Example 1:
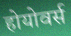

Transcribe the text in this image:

होयोवर्स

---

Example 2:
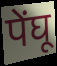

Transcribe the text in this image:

पेंघू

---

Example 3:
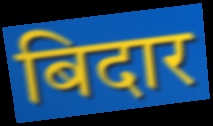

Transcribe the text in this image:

बिदार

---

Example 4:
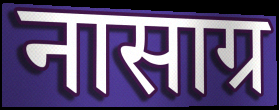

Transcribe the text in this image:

नासाग्र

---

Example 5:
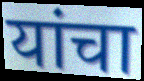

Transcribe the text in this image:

यांचा